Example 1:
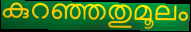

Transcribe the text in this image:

കുറഞ്ഞതുമൂലം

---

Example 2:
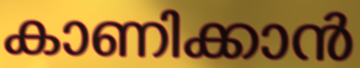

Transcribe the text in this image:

കാണിക്കാൻ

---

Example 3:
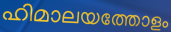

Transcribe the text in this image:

ഹിമാലയത്തോളം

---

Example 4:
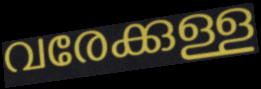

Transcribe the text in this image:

വരേക്കുള്ള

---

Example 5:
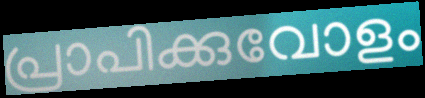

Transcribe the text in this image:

പ്രാപിക്കുവോളം